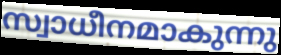
സ്വാധീനമാകുന്നു